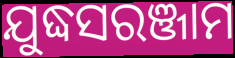
ଯୁଦ୍ଧସରଞ୍ଜାମ